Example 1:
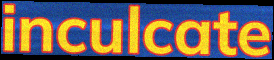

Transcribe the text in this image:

inculcate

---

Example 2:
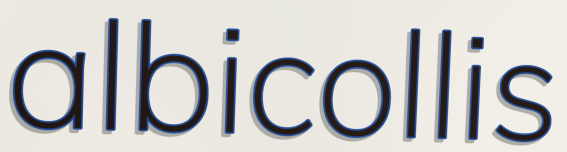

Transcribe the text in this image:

albicollis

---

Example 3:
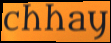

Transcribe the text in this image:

chhay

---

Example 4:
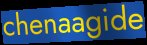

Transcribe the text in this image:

chenaagide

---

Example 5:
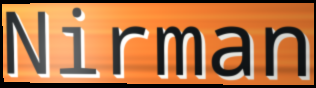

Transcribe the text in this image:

Nirman